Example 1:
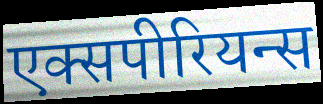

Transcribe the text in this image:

एक्सपीरियन्स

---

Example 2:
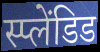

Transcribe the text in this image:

स्प्लेंडिड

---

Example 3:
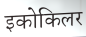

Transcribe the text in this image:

इकोकिलर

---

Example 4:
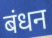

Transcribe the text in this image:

बंधन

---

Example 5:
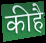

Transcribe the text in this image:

कीहै